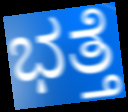
ಭತ್ತೆ